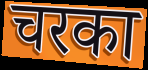
चरका